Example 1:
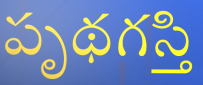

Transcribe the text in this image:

పృథగస్తి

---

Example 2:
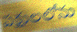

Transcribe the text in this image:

పక్షులలోను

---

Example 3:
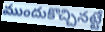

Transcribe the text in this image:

ముందుకొచ్చినట్టే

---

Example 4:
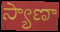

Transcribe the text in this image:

స్యాణా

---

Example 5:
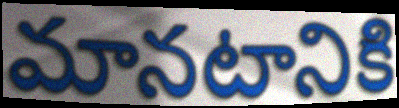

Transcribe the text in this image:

మానటానికి